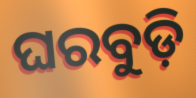
ଘରବୁଡ଼ି